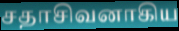
சதாசிவனாகிய